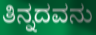
ತಿನ್ನದವನು